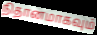
நிதானமாகவும்